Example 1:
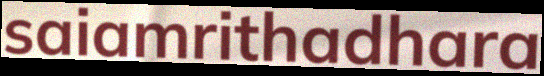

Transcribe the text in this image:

saiamrithadhara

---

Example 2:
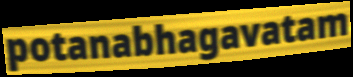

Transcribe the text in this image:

potanabhagavatam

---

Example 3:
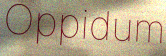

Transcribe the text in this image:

Oppidum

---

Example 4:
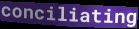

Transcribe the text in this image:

conciliating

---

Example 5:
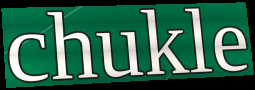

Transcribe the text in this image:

chukle